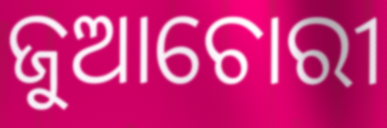
ଜୁଆଚୋରୀ